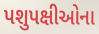
પશુપક્ષીઓના